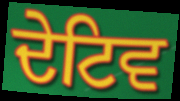
ਦੇਟਿਵ